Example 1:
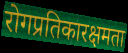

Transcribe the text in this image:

रोगप्रतिकारक्षमता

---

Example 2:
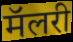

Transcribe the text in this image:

मॅलरी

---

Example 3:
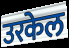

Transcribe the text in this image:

उरकेल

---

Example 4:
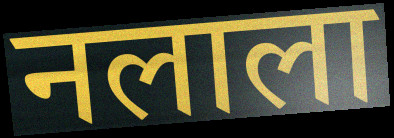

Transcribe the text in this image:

नलाला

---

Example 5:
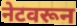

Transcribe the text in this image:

नेटवरून